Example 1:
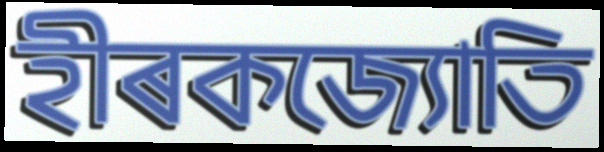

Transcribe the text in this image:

হীৰকজ্যোতি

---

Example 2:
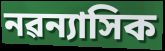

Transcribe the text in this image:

নৱন্যাসিক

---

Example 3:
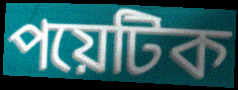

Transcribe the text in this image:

পয়েটিক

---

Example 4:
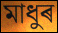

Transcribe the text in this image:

মাধুৰ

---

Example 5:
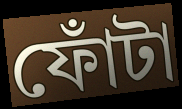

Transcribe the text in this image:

ফোঁটা